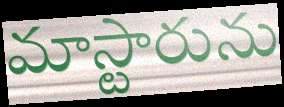
మాస్టారును